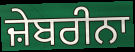
ਜ਼ੇਬਰੀਨਾ